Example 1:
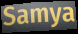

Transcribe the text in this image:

Samya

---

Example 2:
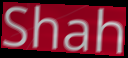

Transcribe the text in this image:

Shah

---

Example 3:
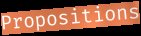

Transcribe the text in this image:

Propositions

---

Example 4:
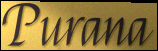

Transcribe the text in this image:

Purana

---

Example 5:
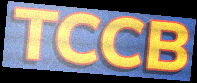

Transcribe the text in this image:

TCCB